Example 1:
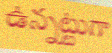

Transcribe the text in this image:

ఉన్నట్టుగా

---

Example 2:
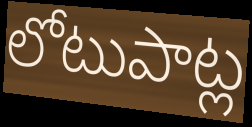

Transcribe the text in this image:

లోటుపాట్ల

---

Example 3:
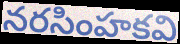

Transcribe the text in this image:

నరసింహకవి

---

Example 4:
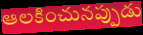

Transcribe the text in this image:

ఆలకించునప్పుడు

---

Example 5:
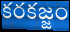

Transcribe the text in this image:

కరకజ్జం